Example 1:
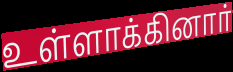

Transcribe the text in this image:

உள்ளாக்கினார்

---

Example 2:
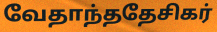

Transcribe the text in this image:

வேதாந்ததேசிகர்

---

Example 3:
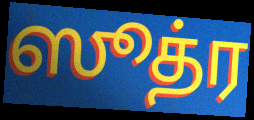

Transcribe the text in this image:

ஸூத்ர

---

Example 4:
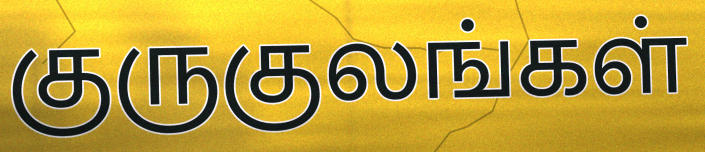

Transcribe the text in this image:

குருகுலங்கள்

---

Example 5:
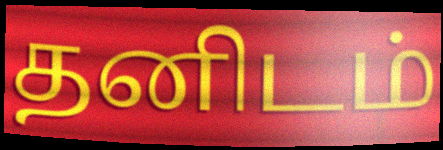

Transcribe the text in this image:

தனிடம்